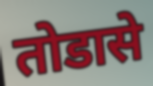
तोडासे